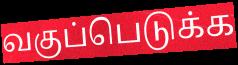
வகுப்பெடுக்க